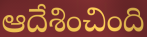
ఆదేశించింది